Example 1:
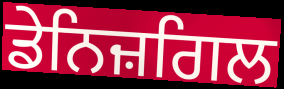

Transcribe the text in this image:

ਡੇਨਿਜ਼ਗਿਲ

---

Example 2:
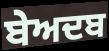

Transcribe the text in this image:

ਬੇਅਦਬ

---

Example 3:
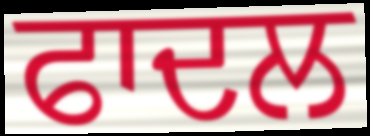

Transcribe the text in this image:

ਫਾਦਲ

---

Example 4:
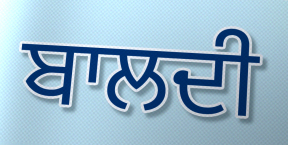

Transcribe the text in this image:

ਬਾਲਦੀ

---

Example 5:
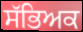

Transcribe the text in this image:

ਸੱਭਿਅਕ